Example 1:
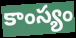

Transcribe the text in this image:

కాంస్యం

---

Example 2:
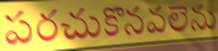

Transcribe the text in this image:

పరచుకొనవలెను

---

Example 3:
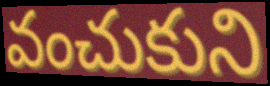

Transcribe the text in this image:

వంచుకుని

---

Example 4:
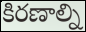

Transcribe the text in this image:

కిరణాల్ని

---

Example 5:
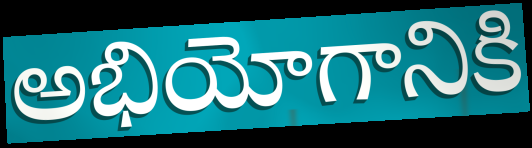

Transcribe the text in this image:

అభియోగానికి